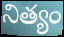
నిత్యం